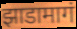
झाडामागं